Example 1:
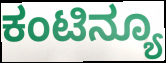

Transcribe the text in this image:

ಕಂಟಿನ್ಯೂ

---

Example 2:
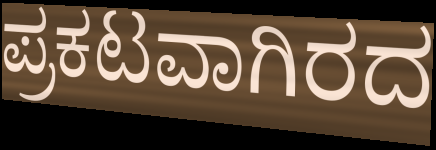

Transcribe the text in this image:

ಪ್ರಕಟವಾಗಿರದ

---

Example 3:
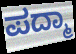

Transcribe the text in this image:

ಪದ್ಮಾ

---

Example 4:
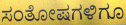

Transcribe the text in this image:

ಸಂತೋಷಗಳಿಗೂ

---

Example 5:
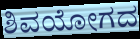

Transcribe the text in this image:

ಶಿವಯೋಗದ